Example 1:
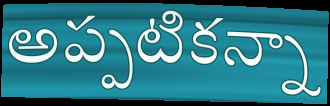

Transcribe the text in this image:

అప్పటికన్నా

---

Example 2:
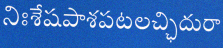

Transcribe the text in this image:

నిఃశేషపాశపటలచ్ఛిదురా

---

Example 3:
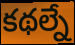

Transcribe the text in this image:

కథల్నే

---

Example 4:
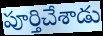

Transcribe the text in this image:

పూర్తిచేశాడు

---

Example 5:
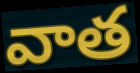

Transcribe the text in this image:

వాత